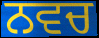
ਨਵਚ